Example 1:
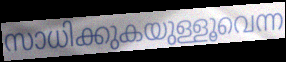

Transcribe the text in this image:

സാധിക്കുകയുള്ളൂവെന്ന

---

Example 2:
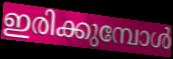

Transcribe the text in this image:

ഇരിക്കുമ്പോൾ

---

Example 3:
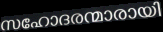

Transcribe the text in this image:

സഹോദരന്മാരായി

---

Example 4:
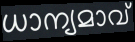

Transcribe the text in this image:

ധാന്യമാവ്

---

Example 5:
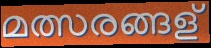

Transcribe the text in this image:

മത്സരങ്ങള്